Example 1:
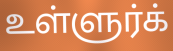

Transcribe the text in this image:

உள்ளுர்க்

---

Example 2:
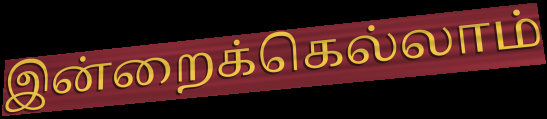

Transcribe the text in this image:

இன்றைக்கெல்லாம்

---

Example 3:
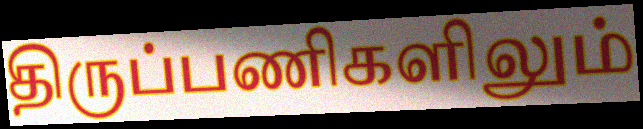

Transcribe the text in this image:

திருப்பணிகளிலும்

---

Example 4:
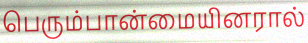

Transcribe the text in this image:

பெரும்பான்மையினரால்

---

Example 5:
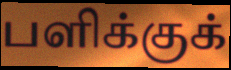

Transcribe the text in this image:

பளிக்குக்